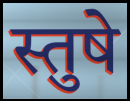
स्तुषे